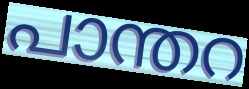
പാന്തറ